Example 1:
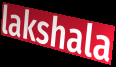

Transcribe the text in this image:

lakshala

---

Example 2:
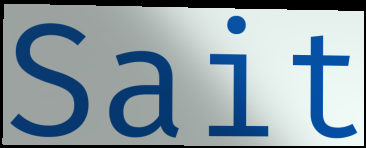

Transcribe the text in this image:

Sait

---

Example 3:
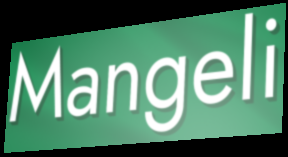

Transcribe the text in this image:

Mangeli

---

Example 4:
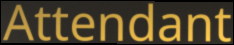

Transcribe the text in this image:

Attendant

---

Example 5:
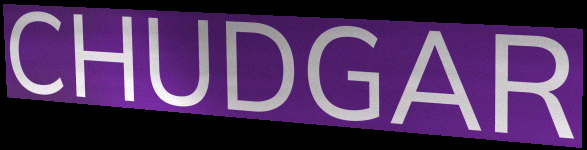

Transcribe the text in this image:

CHUDGAR